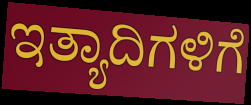
ಇತ್ಯಾದಿಗಳಿಗೆ